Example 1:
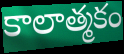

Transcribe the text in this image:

కాలాత్మకం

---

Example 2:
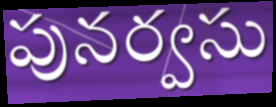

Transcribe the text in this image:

పునర్వసు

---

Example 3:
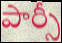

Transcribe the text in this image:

పార్సీ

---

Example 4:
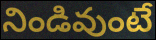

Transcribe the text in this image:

నిండివుంటే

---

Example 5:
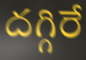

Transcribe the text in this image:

దగ్గిరే